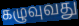
கழுவுவது